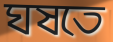
ঘষতে